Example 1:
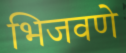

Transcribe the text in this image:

भिजवणे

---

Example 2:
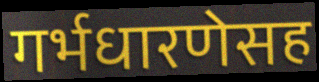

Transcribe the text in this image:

गर्भधारणेसह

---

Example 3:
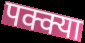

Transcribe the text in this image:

पक्क्या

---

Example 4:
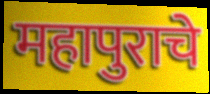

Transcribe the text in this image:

महापुराचे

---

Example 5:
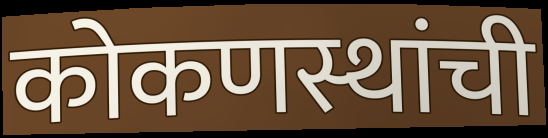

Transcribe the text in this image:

कोकणस्थांची